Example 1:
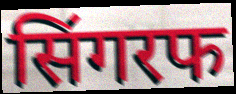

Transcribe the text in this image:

सिंगरफ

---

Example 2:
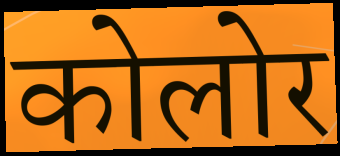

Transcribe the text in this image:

कोलोर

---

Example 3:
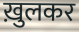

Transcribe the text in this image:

ख़ुलकर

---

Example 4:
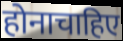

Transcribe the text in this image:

होनाचाहिए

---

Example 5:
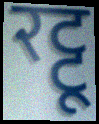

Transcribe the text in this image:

रट्टू